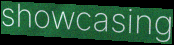
showcasing